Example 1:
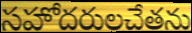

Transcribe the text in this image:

సహోదరులచేతను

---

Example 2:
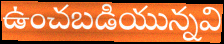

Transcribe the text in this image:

ఉంచబడియున్నవి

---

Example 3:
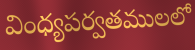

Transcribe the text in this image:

వింధ్యపర్వతములలో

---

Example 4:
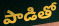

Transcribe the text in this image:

పాడితో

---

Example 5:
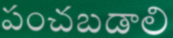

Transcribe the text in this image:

పంచబడాలి